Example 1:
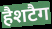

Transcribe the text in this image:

हैशटैग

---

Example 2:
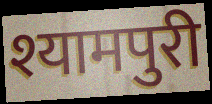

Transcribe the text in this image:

श्यामपुरी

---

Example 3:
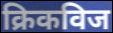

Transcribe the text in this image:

क्रिकविज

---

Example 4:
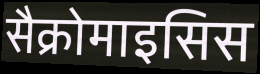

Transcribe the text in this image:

सैक्रोमाइसिस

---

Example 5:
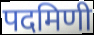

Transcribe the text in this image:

पदमिणी